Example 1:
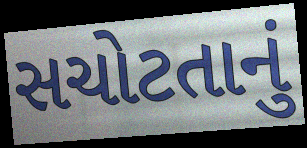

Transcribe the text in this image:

સચોટતાનું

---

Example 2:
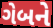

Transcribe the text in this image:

ગેબને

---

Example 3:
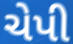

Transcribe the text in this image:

ચેપી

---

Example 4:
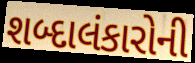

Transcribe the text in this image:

શબ્દાલંકારોની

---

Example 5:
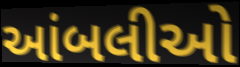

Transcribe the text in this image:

આંબલીઓ